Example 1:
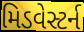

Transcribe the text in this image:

મિડવેસ્ટર્ન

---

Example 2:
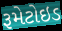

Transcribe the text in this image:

રૂમેટોઇડ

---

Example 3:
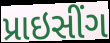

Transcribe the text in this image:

પ્રાઇસીંગ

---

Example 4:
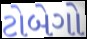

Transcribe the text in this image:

ટોબેગો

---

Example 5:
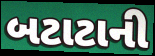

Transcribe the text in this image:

બટાટાની